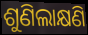
ଶୁଣିଲାକ୍ଷଣି